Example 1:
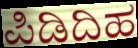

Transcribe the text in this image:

ಪಿಡಿದಿಹ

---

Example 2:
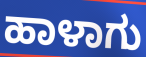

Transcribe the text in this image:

ಹಾಳಾಗು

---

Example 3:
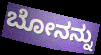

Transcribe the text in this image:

ಬೋನನ್ನು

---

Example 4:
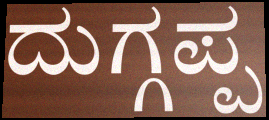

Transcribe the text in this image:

ದುಗ್ಗಪ್ಪ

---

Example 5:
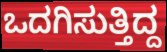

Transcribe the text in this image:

ಒದಗಿಸುತ್ತಿದ್ದ